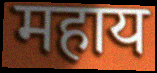
महाय